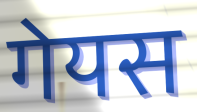
गेयस